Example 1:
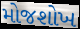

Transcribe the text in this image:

મોજશોખ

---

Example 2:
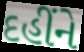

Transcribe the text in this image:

દહીંને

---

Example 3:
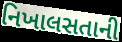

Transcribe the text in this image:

નિખાલસતાની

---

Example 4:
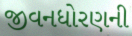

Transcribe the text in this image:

જીવનધોરણની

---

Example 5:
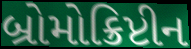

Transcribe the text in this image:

બ્રોમોક્રિપ્ટીન